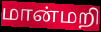
மான்மறி